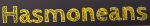
Hasmoneans